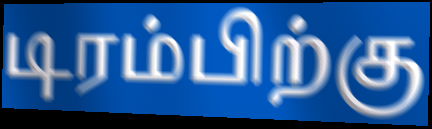
டிரம்பிற்கு